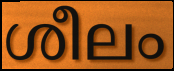
ശീലം